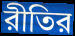
রীতির